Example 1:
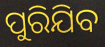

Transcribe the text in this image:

ପୁରିଯିବ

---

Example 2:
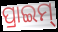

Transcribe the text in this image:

ପ୍ରାଇମ୍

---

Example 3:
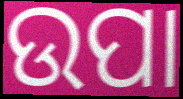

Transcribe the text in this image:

ଉପା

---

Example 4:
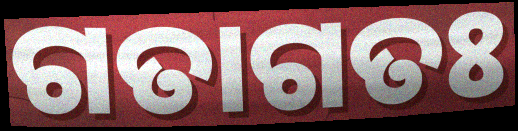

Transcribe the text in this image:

ଗତାଗତଃ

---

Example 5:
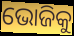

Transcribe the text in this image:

ଭୋଜିକୁ